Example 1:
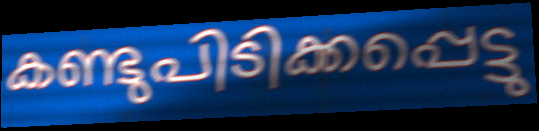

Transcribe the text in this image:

കണ്ടുപിടിക്കപ്പെട്ടു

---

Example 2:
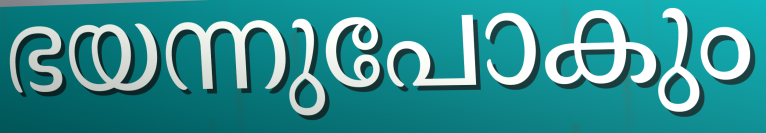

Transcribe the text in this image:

ഭയന്നുപോകും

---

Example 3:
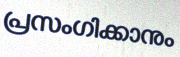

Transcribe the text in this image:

പ്രസംഗിക്കാനും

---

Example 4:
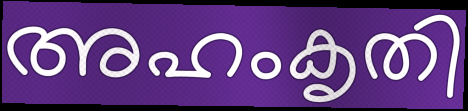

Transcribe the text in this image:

അഹംകൃതി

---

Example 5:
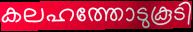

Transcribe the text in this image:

കലഹത്തോടുകൂടി